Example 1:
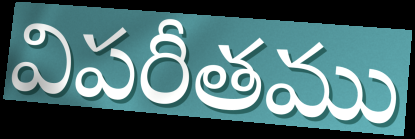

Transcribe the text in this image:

విపరీతము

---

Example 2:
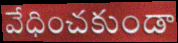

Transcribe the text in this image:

వేధించకుండా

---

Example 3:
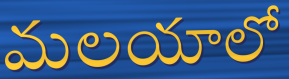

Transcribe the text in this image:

మలయాలో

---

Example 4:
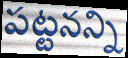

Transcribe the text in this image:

పట్టనన్ని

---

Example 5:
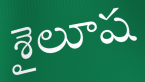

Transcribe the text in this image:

శైలూష